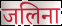
जलिना